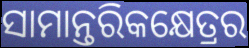
ସାମାନ୍ତରିକକ୍ଷେତ୍ରର